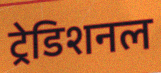
ट्रेडिशनल